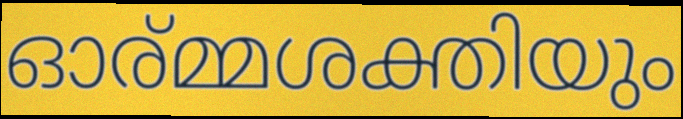
ഓര്മ്മശക്തിയും